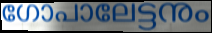
ഗോപാലേട്ടനും